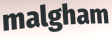
malgham